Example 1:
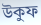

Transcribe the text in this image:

উকুফ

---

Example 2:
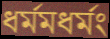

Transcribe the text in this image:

ধর্মমধর্মং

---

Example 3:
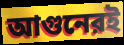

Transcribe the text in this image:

আগুনেরই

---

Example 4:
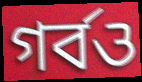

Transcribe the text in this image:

গর্বও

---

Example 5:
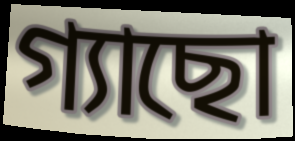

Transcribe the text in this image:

গ্যাছো